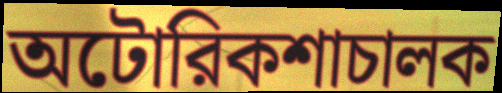
অটোরিকশাচালক